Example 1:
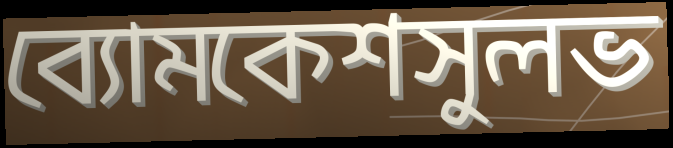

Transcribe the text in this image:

ব্যোমকেশসুলভ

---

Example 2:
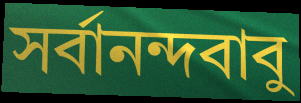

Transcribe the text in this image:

সর্বানন্দবাবু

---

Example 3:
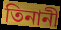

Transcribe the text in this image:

তিনানী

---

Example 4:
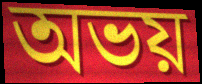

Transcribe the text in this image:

অভয়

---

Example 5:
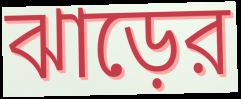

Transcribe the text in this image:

ঝাড়ের